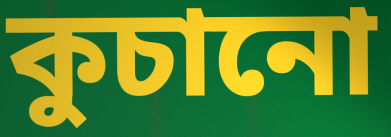
কুচানো